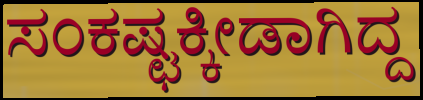
ಸಂಕಷ್ಟಕ್ಕೀಡಾಗಿದ್ದ